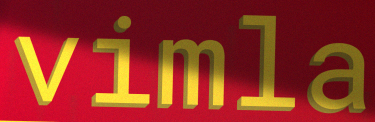
vimla